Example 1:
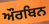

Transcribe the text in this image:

ਔਰਬਿਨ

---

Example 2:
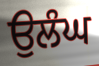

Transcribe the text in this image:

ਉਲੰਘ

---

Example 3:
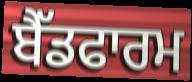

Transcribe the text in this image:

ਬੈੱਡਫਾਰਮ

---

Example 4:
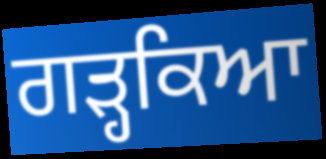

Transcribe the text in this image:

ਗੜ੍ਹਕਿਆ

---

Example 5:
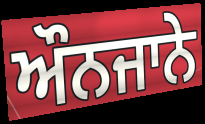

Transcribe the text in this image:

ਔਨਜਾਨੇ